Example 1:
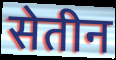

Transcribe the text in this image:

सेतीन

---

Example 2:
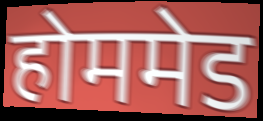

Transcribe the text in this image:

होममेड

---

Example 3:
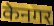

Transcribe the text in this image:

केनगर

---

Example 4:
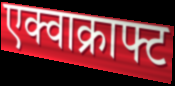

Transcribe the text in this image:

एक्वाक्राफ्ट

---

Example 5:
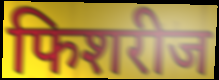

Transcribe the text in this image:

फिशरीज